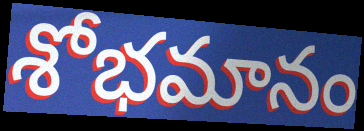
శోభమానం